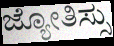
ಜ್ಯೋತಿಸ್ಸು